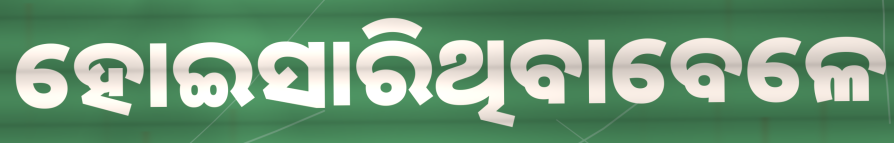
ହୋଇସାରିଥିବାବେଳେ